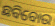
ଛବିବୋଉ